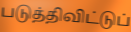
படுத்திவிட்டுப்